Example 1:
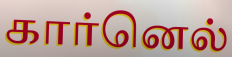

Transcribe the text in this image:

கார்னெல்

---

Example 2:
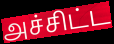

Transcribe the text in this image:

அச்சிட்ட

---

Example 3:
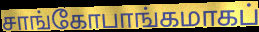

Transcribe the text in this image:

சாங்கோபாங்கமாகப்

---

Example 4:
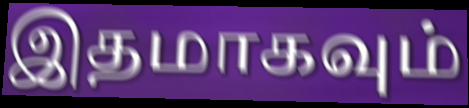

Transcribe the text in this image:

இதமாகவும்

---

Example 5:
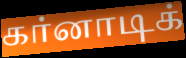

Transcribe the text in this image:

கர்னாடிக்